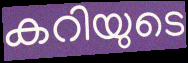
കറിയുടെ